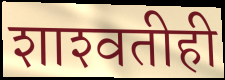
शाश्वतीही